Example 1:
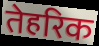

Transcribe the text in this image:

तेहरिक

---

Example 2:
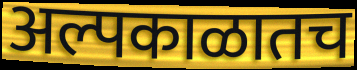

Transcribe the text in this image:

अल्पकाळातच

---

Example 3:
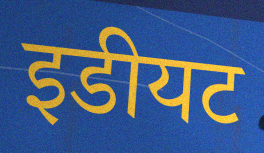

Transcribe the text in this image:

इडीयट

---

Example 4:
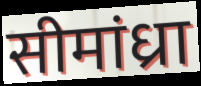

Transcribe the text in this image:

सीमांध्रा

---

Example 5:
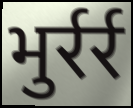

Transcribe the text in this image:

भुर्रर्र